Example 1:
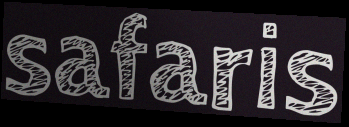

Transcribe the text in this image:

safaris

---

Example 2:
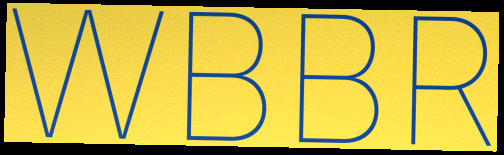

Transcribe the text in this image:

WBBR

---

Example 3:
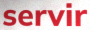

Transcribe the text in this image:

servir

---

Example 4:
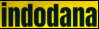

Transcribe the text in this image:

indodana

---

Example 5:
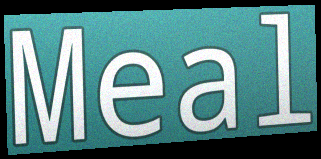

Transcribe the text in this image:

Meal